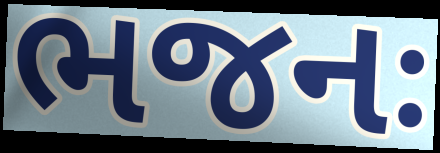
ભજનઃ